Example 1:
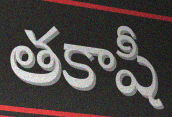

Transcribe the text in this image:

తకాషీ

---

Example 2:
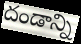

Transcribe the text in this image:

దండాన్ని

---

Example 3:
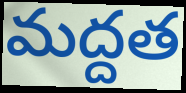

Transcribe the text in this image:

మద్దత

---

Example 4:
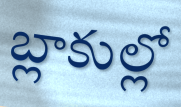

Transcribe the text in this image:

బ్లాకుల్లో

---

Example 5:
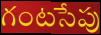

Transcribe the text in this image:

గంటసేపు